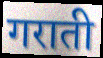
गराती